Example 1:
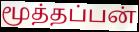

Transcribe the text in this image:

மூத்தப்பன்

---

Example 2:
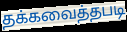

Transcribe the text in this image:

தக்கவைத்தபடி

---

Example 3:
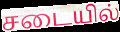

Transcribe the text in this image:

சடையில்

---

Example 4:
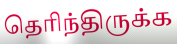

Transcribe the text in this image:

தெரிந்திருக்க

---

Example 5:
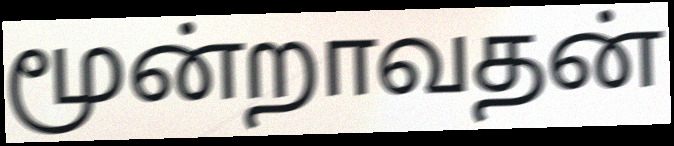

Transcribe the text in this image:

மூன்றாவதன்